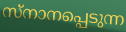
സ്നാനപ്പെടുന്ന